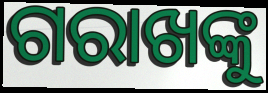
ଗରାଖଙ୍କୁ